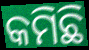
କମିଛି